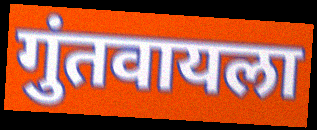
गुंतवायला